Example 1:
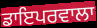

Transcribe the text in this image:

ਡਾਇਪਰਵਾਲਾ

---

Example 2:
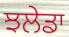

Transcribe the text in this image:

ਝਲੇਡਾ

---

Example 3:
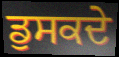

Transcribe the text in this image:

ਡੁਸਕਦੇ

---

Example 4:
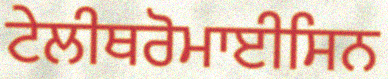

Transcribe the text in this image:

ਟੇਲੀਥਰੋਮਾਈਸਿਨ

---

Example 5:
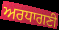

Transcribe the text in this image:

ਅਰਧਾਗਣੀ